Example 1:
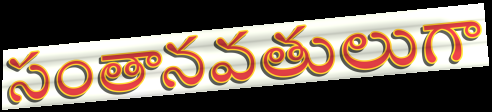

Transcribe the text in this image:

సంతానవతులుగా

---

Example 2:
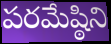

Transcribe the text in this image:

పరమేష్ఠిని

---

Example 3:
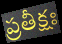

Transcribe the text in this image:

ప్రతీక్షః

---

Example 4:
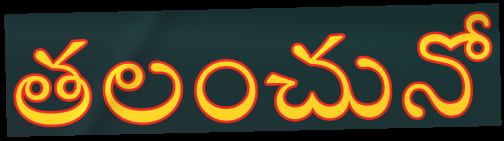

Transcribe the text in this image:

తలంచునో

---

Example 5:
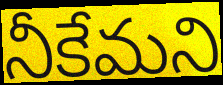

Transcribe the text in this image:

నీకేమని